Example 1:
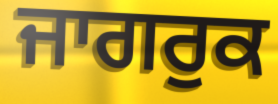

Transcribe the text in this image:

ਜਾਗਰੁਕ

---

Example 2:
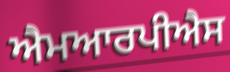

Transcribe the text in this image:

ਐਮਆਰਪੀਐਸ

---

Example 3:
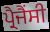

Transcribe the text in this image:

ਪ੍ਰੈਜੈਂਸੀ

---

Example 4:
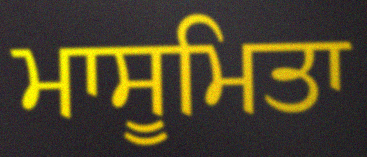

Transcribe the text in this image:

ਮਾਸੂਮਿਤਾ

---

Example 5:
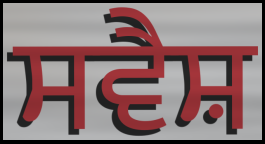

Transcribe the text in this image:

ਸਵੈਸ਼